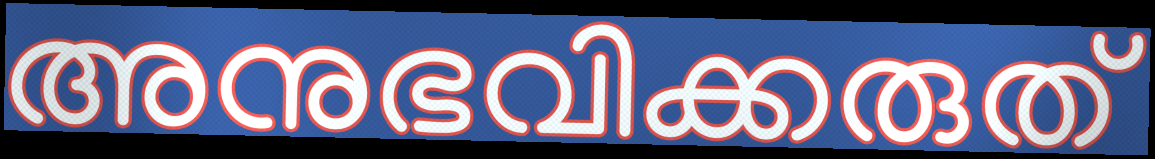
അനുഭവിക്കരുത്